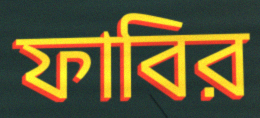
ফাবির